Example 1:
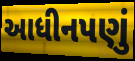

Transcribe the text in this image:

આધીનપણું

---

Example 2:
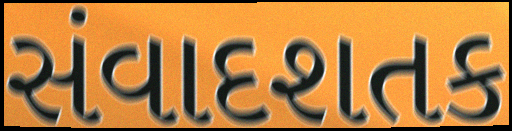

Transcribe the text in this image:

સંવાદશતક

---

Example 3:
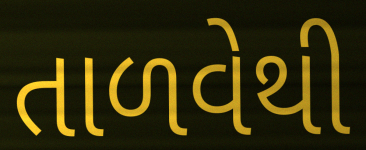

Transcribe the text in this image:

તાળવેથી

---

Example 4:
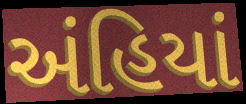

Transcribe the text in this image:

અંહિયાં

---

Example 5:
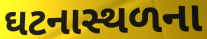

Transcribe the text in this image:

ઘટનાસ્થળના